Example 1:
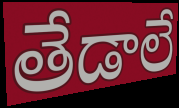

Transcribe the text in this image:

తేడాలే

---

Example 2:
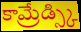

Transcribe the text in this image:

కామ్రేడ్స్కి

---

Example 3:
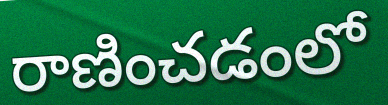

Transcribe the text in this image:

రాణించడంలో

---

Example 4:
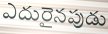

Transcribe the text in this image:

ఎదురైనపుడు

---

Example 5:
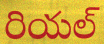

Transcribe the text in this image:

రియల్